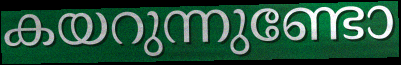
കയറുന്നുണ്ടോ